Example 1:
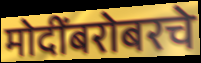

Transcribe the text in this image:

मोदींबरोबरचे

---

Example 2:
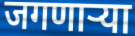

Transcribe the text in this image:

जगणार्‍या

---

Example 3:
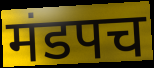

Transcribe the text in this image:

मंडपच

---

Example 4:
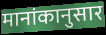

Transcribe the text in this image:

मानांकानुसार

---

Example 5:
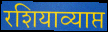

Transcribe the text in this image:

रशियाव्याप्त